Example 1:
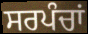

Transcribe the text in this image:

ਸਰਪੰਚਾਂ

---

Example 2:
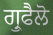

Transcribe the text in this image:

ਗ੍ਰੁਫੈਲੋ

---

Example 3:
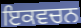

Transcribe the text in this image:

ਇਕਵਚਨ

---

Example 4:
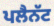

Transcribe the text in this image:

ਪਲੈਨੱਟ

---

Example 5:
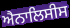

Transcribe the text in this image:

ਐਨਾਲਿਸੀਸ